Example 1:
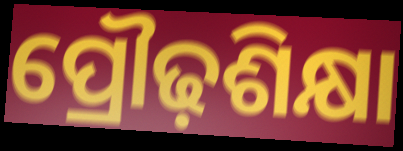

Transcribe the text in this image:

ପ୍ରୌଢ଼ଶିକ୍ଷା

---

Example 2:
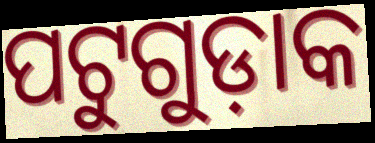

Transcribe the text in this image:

ପଟୁଗୁଡ଼ାକ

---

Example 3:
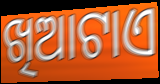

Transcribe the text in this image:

ଖିଆଟାଏ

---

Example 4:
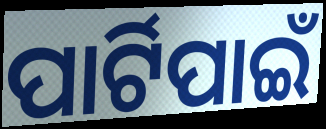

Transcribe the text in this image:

ପାର୍ଟିପାଇଁ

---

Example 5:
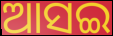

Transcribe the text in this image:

ଆସଇ